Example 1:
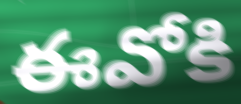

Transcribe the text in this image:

ఈవోకి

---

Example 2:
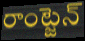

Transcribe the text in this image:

రాంట్జెన్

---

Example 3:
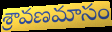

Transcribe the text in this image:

శ్రావణమాసం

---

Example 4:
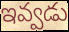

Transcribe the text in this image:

ఇవ్వడు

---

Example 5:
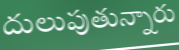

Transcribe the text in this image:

దులుపుతున్నారు